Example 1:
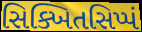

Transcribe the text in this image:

સિક્ખિતસિપ્પં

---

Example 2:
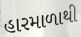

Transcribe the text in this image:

હારમાળાથી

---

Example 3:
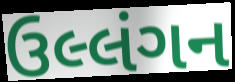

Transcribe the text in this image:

ઉલ્લંગન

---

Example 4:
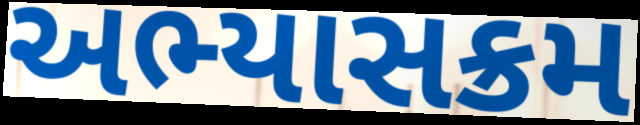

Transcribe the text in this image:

અભ્યાસક્રમ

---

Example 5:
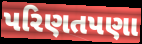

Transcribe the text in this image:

પરિણતપણા